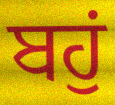
ਬਹੁਂ